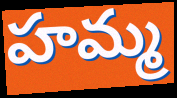
హమ్మ